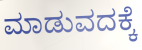
ಮಾಡುವದಕ್ಕೆ